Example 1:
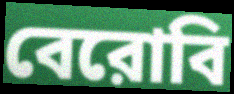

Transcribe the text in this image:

বেরোবি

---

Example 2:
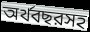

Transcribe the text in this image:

অর্থবছরসহ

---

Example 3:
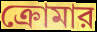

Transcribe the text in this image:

ক্রোমার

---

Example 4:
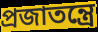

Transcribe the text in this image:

প্রজাতন্ত্রে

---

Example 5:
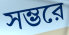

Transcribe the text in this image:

সম্ভরে